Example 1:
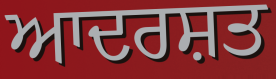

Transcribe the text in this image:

ਆਦਰਸ਼ਤ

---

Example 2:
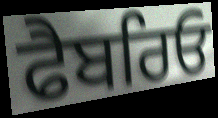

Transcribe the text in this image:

ਫੈਬਰਿਓ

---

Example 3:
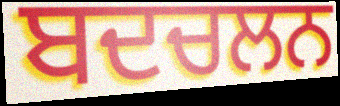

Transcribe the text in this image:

ਬਦਚਲਨ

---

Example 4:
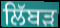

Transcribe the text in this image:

ਲਿੱਬੜ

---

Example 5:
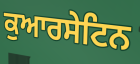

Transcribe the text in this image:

ਕੁਆਰਸੇਟਿਨ